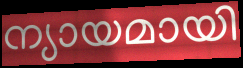
ന്യായമായി